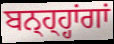
ਬਨ੍ਹ੍ਹ੍ਹਾਂਗਾਂ